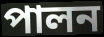
পালন